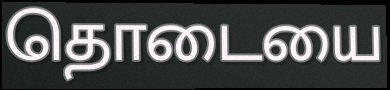
தொடையை